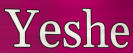
Yeshe